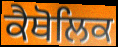
ਕੈਥੋਲਿਕ